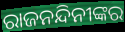
ରାଜନନ୍ଦିନୀଙ୍କର